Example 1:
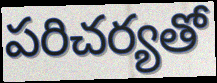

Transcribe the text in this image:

పరిచర్యతో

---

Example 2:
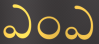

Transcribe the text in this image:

ఎంఎ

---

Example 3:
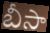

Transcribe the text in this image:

బీసా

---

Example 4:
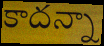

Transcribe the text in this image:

కాదన్నా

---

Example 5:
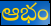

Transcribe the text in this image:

ఆభం